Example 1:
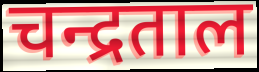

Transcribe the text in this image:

चन्द्रताल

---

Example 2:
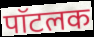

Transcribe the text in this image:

पॉटलक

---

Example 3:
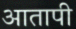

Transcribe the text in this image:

आतापी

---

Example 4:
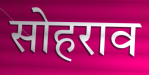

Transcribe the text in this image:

सोहराव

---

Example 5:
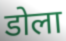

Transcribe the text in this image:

डोला